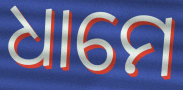
ଧାମେ